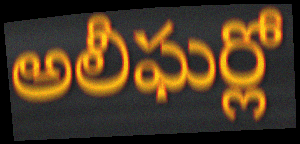
అలీఘర్లో